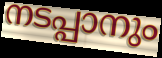
നടപ്പാനും